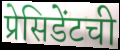
प्रेसिडेंटची